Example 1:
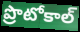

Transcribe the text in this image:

ప్రొటోకాల్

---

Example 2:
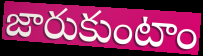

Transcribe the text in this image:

జారుకుంటాం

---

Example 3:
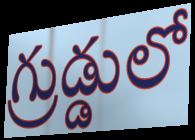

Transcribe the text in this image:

గ్రుడ్డులో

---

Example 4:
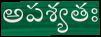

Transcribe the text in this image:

అపశ్యతః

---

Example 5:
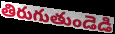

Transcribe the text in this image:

తిరుగుతుండెడి